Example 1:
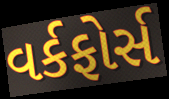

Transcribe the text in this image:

વર્કફોર્સ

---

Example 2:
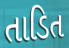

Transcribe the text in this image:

તાડિત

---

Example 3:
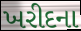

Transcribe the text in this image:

ખરીદના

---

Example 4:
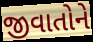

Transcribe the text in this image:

જીવાતોને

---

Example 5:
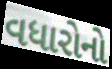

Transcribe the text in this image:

વધારોનો